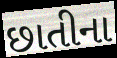
છાતીના